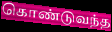
கொண்டுவந்த